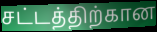
சட்டத்திற்கான